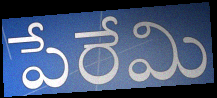
పేరేమి